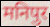
मनिपुर